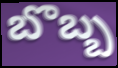
బొబ్బ